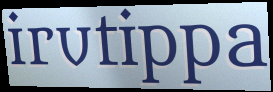
irutippa